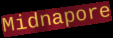
Midnapore